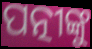
ପତ୍ନୀଙ୍କୁ